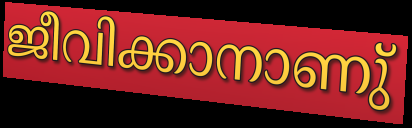
ജീവിക്കാനാണു്